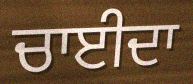
ਚਾਈਦਾ